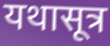
यथासूत्र